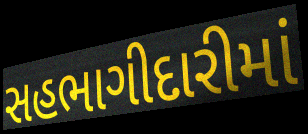
સહભાગીદારીમાં